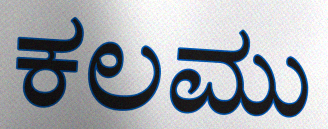
ಕಲಮು